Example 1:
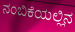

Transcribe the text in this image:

ನಂಬಿಕೆಯಲ್ಲಿನ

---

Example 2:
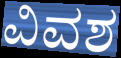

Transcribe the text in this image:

ವಿವಶ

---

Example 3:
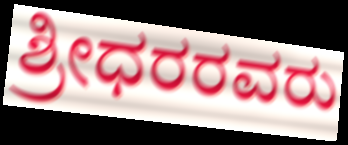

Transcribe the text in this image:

ಶ್ರೀಧರರವರು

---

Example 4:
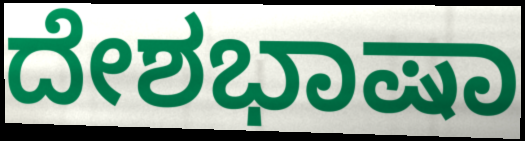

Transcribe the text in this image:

ದೇಶಭಾಷಾ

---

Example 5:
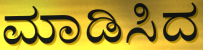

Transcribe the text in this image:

ಮಾಡಿಸಿದ